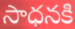
సాధనకి